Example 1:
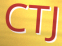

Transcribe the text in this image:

CTJ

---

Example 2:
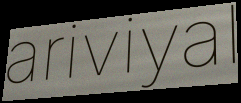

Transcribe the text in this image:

ariviyal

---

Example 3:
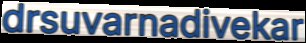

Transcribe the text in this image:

drsuvarnadivekar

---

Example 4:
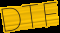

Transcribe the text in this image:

DTF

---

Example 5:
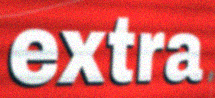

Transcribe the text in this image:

extra